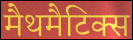
मैथमैटिक्स